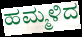
ಹಮ್ಮಳಿದ